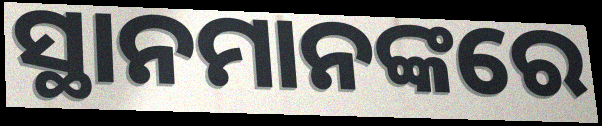
ସ୍ଥାନମାନଙ୍କରେ